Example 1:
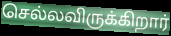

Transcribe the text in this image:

செல்லவிருக்கிறார்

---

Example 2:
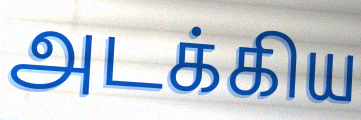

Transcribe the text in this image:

அடக்கிய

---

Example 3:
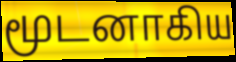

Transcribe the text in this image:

மூடனாகிய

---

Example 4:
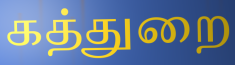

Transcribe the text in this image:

கத்துறை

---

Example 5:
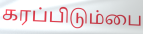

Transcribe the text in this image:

கரப்பிடும்பை